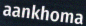
aankhoma